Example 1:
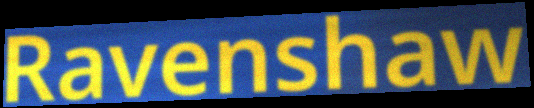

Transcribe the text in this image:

Ravenshaw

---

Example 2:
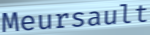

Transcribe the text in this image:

Meursault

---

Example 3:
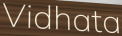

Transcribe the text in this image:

Vidhata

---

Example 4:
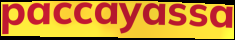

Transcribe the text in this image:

paccayassa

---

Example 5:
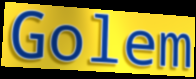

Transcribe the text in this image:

Golem